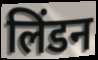
लिंडन